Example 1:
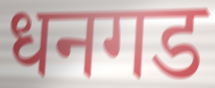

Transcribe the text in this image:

धनगड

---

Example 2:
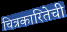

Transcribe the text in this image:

चित्रकारितेची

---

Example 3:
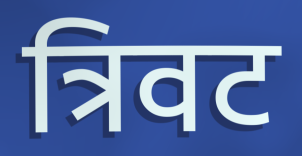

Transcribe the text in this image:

त्रिवट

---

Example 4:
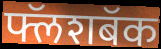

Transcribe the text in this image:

फ्लॅशबॅक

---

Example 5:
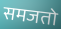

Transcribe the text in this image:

समजतो